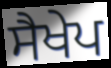
ਸੈਖੇਪ